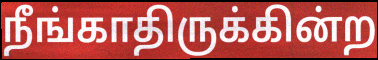
நீங்காதிருக்கின்ற